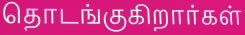
தொடங்குகிறார்கள்